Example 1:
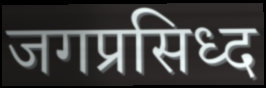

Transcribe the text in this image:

जगप्रसिध्द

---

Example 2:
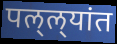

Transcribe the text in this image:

पल्ल्यांत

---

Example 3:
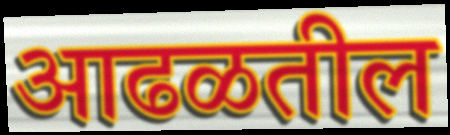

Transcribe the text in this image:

आढळतील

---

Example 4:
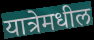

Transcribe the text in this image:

यात्रेमधील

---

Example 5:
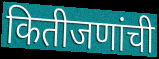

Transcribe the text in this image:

कितीजणांची